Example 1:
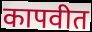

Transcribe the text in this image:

कापवीत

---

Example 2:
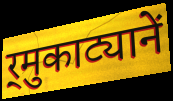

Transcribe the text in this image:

र्मुकाट्यानें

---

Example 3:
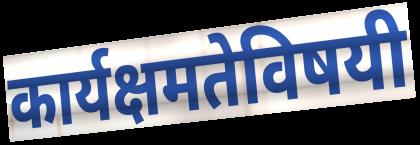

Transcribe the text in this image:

कार्यक्षमतेविषयी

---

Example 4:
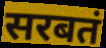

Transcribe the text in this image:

सरबतं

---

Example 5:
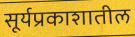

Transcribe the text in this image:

सूर्यप्रकाशातील